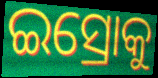
ଇସ୍ରୋକୁ